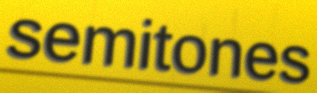
semitones